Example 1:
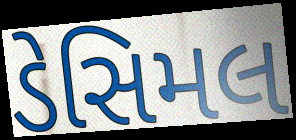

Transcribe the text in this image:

ડેસિમલ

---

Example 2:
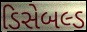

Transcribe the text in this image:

ડિસેબલ્ડ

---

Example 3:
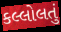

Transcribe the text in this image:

કલ્લોલતું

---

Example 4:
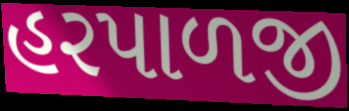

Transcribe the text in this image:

હરપાળજી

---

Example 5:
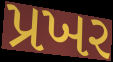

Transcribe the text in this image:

પ્રખર